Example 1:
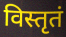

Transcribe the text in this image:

विस्तृतं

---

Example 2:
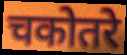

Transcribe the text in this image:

चकोतरे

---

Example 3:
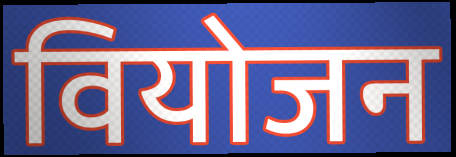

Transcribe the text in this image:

वियोजन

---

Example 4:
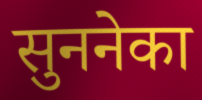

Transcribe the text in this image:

सुननेका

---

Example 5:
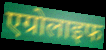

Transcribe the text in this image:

एग्रोलाइफ